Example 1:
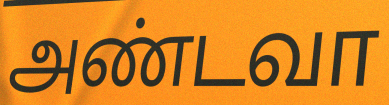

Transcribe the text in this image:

அண்டவா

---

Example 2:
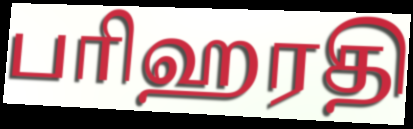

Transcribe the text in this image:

பரிஹரதி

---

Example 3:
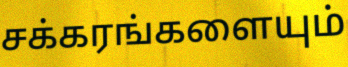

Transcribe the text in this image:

சக்கரங்களையும்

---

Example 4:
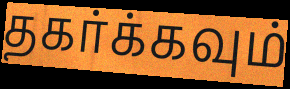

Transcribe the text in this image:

தகர்க்கவும்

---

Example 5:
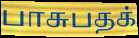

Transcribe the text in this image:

பாசுபதக்